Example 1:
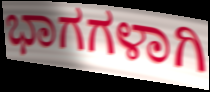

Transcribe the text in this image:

ಭಾಗಗಳಾಗಿ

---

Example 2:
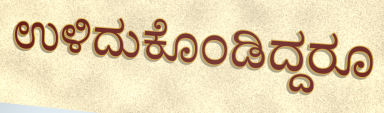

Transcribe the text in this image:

ಉಳಿದುಕೊಂಡಿದ್ದರೂ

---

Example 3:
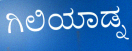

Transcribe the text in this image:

ಗಿಲಿಯಾಡ್ನ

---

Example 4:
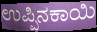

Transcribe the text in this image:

ಉಪ್ಪಿನಕಾಯಿ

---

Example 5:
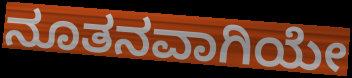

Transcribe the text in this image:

ನೂತನವಾಗಿಯೇ